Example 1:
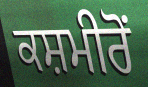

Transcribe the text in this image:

ਕਸ਼ਮੀਰੋਂ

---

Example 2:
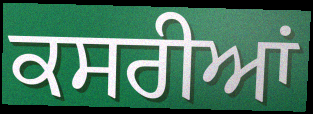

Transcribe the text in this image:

ਕਸਰੀਆਂ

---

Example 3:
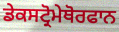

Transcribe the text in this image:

ਡੇਕਸਟ੍ਰੋਮੇਥੋਰਫਾਨ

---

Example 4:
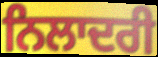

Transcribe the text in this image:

ਨਿਲਾਦਰੀ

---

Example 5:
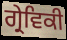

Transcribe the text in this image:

ਗ੍ਰੇਵਿਕੀ